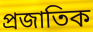
প্ৰজাতিক